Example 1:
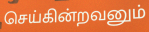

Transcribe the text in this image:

செய்கின்றவனும்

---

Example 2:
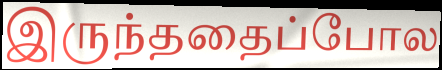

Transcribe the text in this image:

இருந்ததைப்போல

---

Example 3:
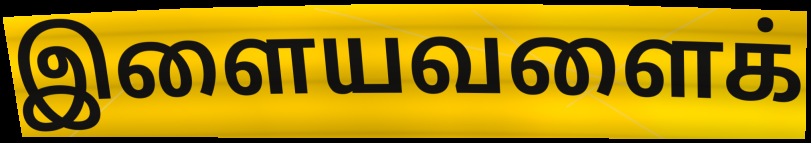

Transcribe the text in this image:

இளையவளைக்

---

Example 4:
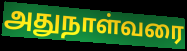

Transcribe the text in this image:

அதுநாள்வரை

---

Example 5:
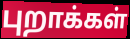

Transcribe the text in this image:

புறாக்கள்